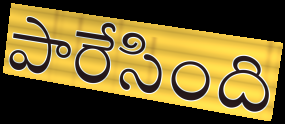
పారేసింది